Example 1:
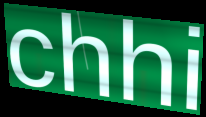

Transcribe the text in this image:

chhi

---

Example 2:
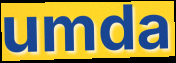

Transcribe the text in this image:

umda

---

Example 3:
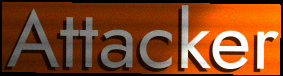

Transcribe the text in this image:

Attacker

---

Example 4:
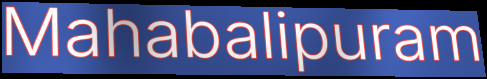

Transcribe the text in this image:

Mahabalipuram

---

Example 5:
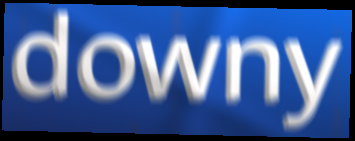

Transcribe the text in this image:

downy